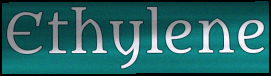
Ethylene